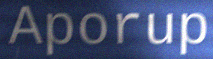
Aporup